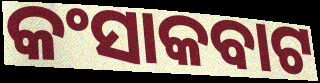
କଂସାକବାଟ